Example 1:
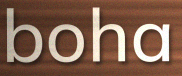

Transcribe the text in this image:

boha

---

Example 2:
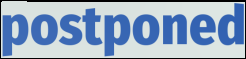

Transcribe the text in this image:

postponed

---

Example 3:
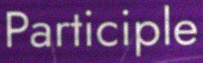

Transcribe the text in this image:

Participle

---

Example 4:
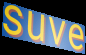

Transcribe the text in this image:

suve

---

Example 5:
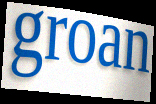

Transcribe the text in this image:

groan